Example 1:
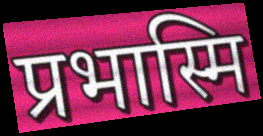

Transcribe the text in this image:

प्रभास्मि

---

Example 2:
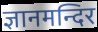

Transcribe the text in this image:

ज्ञानमन्दिर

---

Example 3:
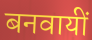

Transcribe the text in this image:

बनवायीं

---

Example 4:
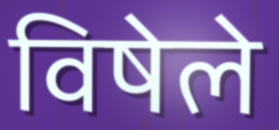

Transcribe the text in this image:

विषेले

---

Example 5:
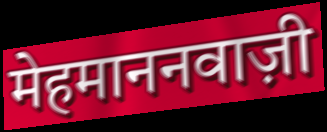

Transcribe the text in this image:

मेहमाननवाज़ी